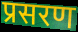
प्रसरण